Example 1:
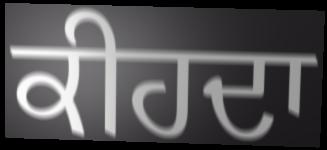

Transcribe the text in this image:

ਕੀਹਦਾ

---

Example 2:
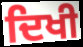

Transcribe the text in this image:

ਦਿਖੀ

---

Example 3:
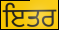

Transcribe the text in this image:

ਇਤਰ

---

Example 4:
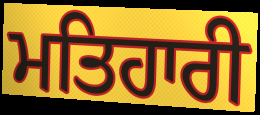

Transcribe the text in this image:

ਮਤਿਹਾਰੀ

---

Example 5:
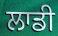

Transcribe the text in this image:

ਲਾਡੀ